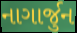
નાગાર્જુન